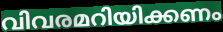
വിവരമറിയിക്കണം